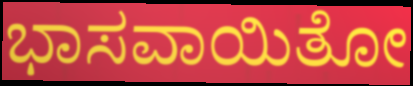
ಭಾಸವಾಯಿತೋ